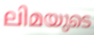
ലിമയുടെ